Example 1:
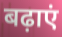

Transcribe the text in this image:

बढ़ाएं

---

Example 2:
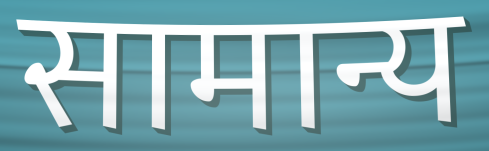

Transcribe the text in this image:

सामान्य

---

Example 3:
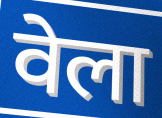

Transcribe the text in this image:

वेला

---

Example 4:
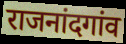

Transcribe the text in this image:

राजनांदगांव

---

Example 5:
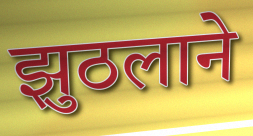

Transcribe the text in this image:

झुठलाने